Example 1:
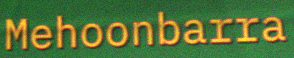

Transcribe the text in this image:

Mehoonbarra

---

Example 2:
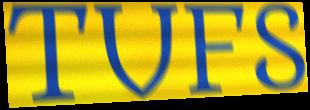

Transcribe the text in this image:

TUFS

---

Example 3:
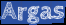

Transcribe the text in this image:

Argas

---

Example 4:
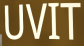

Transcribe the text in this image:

UVIT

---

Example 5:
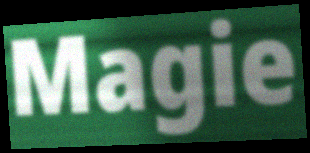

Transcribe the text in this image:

Magie